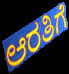
ಆರತಿಗೆ